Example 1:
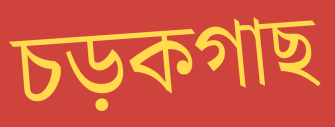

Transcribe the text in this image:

চড়কগাছ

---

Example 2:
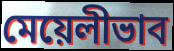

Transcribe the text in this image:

মেয়েলীভাব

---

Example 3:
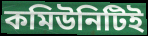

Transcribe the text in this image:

কমিউনিটিই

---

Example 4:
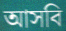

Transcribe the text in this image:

আসবি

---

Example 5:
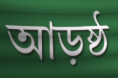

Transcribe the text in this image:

আড়ষ্ঠ